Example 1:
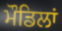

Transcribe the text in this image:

ਮੌਡਿਲਾਂ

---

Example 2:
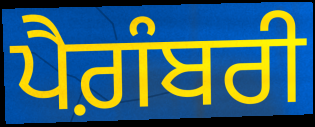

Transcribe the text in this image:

ਪੈਗ਼ੰਬਰੀ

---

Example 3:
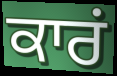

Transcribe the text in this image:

ਕਾਰਂ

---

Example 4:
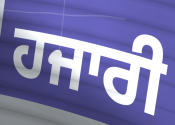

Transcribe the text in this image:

ਹਜਾਰੀ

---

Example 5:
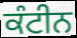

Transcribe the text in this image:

ਕੰਟੀਨ